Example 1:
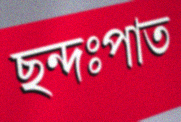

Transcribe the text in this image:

ছন্দঃপাত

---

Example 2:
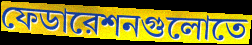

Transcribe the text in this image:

ফেডারেশনগুলোতে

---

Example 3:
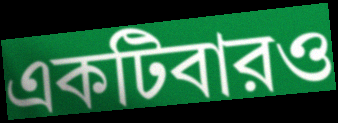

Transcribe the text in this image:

একটিবারও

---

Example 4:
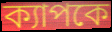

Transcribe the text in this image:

ক্যাপকে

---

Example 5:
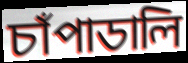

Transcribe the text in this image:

চাঁপাডালি